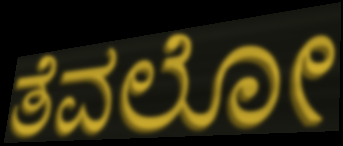
ತೆವಲೋ